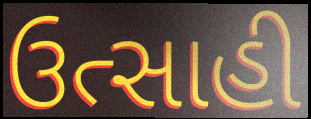
ઉત્સાહી